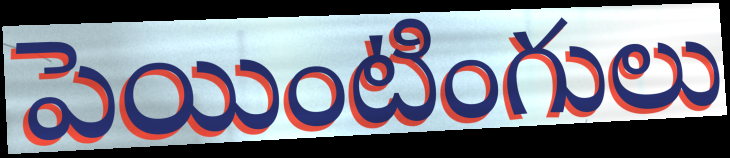
పెయింటింగులు